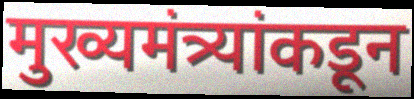
मुख्यमंत्र्यांकडून